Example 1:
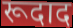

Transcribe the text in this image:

रूदाद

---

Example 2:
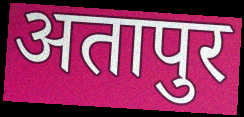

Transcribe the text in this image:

अतापुर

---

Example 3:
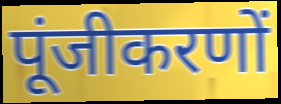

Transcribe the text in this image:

पूंजीकरणों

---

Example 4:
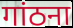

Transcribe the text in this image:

गांठना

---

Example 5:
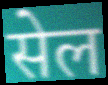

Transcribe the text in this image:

सेल